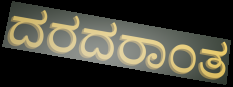
ದರದರಾಂತ